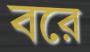
বরে